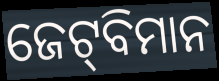
ଜେଟ୍‌ବିମାନ